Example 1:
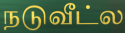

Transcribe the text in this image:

நடுவீட்ல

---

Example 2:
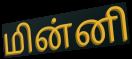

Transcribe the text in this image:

மின்னி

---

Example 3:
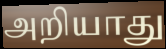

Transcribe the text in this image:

அறியாது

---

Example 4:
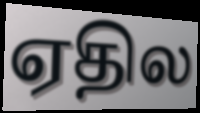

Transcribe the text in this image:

ஏதில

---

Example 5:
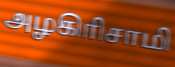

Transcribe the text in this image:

அழகிரிசாமி